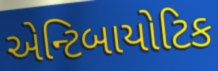
એન્ટિબાયોટિક